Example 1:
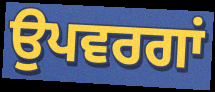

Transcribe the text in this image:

ਉਪਵਰਗਾਂ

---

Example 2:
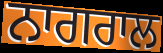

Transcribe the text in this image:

ਨਾਗਰਾਲ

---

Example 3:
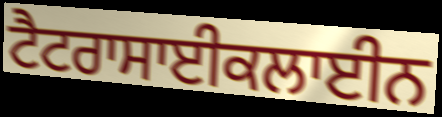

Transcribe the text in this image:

ਟੈਟਰਾਸਾਈਕਲਾਈਨ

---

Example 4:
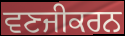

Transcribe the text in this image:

ਵਣਜੀਕਰਨ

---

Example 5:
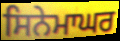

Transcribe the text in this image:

ਸਿਨੇਮਾਘਰ